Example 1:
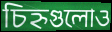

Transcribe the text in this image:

চিহ্নগুলোও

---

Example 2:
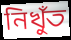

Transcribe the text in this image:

নিখুঁত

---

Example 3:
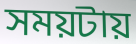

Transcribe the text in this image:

সময়টায়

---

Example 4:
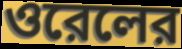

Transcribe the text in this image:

ওরেলের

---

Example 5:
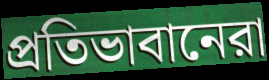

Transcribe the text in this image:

প্রতিভাবানেরা